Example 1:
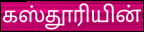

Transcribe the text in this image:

கஸ்தூரியின்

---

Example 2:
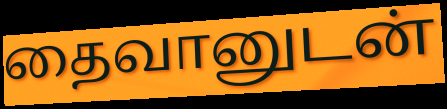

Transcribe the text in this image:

தைவானுடன்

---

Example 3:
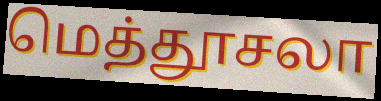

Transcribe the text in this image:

மெத்தூசலா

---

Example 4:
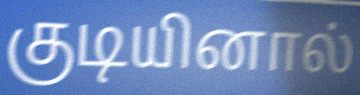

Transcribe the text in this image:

குடியினால்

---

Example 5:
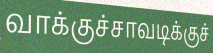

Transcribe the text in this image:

வாக்குச்சாவடிக்குச்